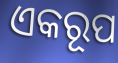
ଏକରୂପ